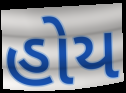
હોય